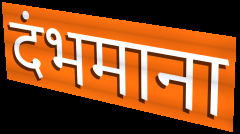
दंभमाना